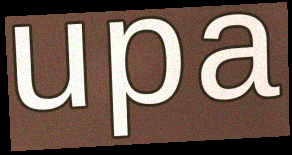
upa